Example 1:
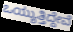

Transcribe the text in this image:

ಒಯ್ಯುತ್ತಿದ್ದೇವೆ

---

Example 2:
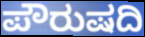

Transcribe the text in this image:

ಪೌರುಷದಿ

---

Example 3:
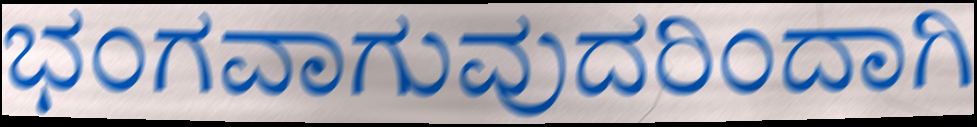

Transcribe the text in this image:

ಭಂಗವಾಗುವುದರಿಂದಾಗಿ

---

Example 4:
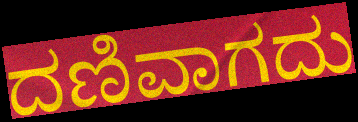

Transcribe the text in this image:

ದಣಿವಾಗದು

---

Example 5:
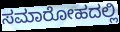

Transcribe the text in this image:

ಸಮಾರೋಹದಲ್ಲಿ